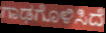
ಗಾಢಗೊಳಿಸಿದೆ